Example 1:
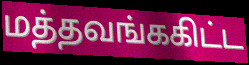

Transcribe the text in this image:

மத்தவங்ககிட்ட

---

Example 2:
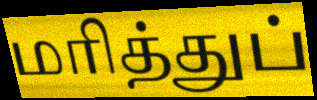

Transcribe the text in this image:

மரித்துப்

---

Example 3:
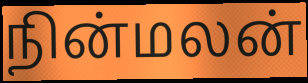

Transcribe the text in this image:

நின்மலன்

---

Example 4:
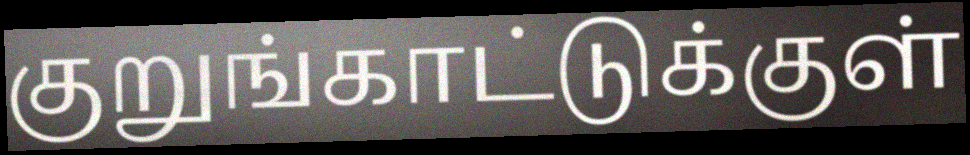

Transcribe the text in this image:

குறுங்காட்டுக்குள்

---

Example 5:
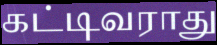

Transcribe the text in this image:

கட்டிவராது